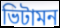
ভিটামন